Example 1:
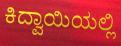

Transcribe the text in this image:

ಕಿದ್ವಾಯಿಯಲ್ಲಿ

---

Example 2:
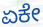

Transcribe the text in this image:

ಏಕೇ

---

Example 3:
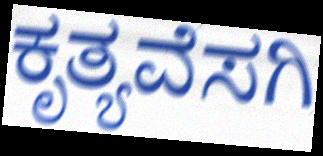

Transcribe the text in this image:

ಕೃತ್ಯವೆಸಗಿ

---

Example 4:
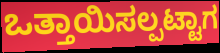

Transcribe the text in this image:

ಒತ್ತಾಯಿಸಲ್ಪಟ್ಟಾಗ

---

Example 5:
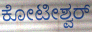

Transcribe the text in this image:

ಕೋಟೀಶ್ವರ್